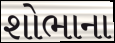
શોભાના